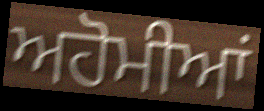
ਅਹੋਮੀਆਂ